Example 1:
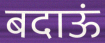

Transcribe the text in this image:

बदाऊं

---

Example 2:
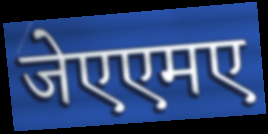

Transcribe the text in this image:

जेएएमए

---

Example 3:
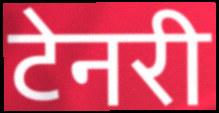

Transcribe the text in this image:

टेनरी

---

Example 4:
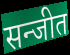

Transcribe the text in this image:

सन्जीत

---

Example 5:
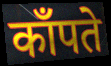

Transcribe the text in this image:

काँपते